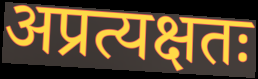
अप्रत्यक्षतः